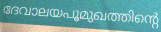
ദേവാലയപൂമുഖത്തിന്റെ